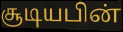
சூடியபின்